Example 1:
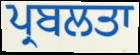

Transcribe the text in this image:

ਪ੍ਰਬਲਤਾ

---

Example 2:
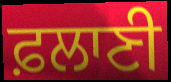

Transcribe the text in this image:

ਫ਼ਲਾਣੀ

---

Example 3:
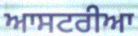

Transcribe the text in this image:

ਆਸਟਰੀਆ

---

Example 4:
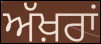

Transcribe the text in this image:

ਅੱਖ਼ਰਾਂ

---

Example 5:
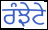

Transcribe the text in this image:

ਰੰਝੇਟੇ